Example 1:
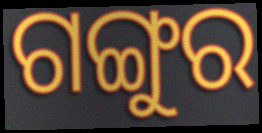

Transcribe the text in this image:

ଗଙ୍ଗୁର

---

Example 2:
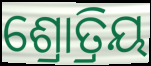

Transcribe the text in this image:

ଶ୍ରୋତ୍ରିୟ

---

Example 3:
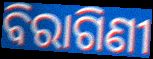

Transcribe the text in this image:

ବିରାଗିଣୀ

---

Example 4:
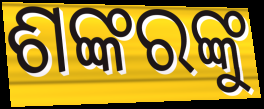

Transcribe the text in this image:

ଶଙ୍କରଙ୍କୁ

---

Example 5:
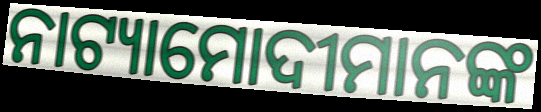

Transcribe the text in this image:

ନାଟ୍ୟାମୋଦୀମାନଙ୍କ